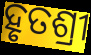
ହୃତଶ୍ରୀ